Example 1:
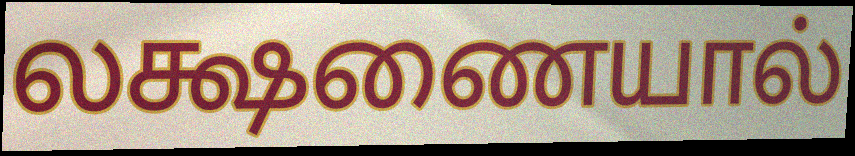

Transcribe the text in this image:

லக்ஷணையால்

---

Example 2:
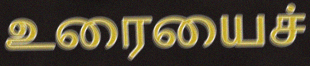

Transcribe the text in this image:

உரையைச்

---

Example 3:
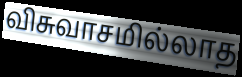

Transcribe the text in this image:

விசுவாசமில்லாத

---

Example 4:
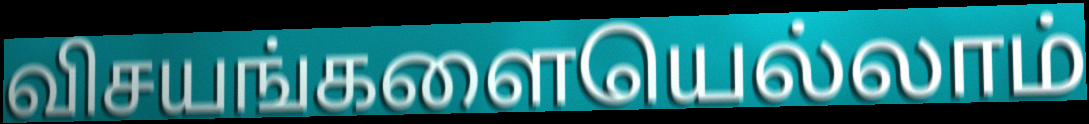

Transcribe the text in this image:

விசயங்களையெல்லாம்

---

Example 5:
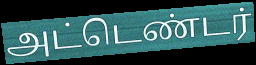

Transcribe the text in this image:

அட்டெண்டர்